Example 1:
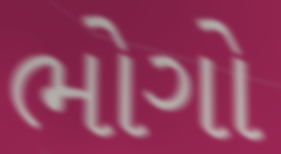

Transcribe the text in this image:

ભોગો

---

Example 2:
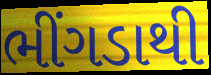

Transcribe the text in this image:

ભીંગડાથી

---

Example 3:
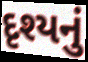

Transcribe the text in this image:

દૃશ્યનું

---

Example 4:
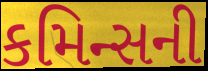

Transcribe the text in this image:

કમિન્સની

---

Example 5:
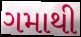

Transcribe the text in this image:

ગમાથી